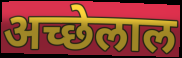
अच्छेलाल